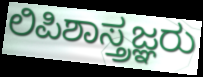
ಲಿಪಿಶಾಸ್ತ್ರಜ್ಞರು